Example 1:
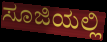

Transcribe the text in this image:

ಸೂಜಿಯಲ್ಲಿ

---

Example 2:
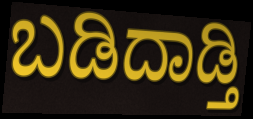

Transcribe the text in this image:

ಬಡಿದಾಡ್ತಿ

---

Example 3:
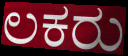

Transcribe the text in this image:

ಲಕರು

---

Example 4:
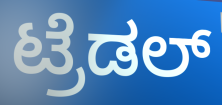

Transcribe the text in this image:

ಟ್ರೆಡಲ್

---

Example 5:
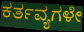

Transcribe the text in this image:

ಕರ್ತವ್ಯಗಳೇ